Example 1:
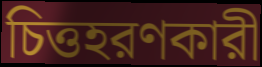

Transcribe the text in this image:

চিত্তহরণকারী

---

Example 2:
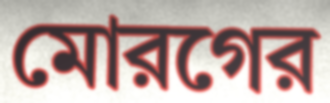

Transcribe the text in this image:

মোরগের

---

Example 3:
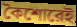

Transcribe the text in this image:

কৈশোরেই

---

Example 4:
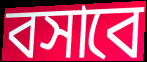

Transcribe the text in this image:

বসাবে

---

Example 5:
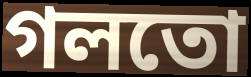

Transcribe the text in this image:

গলতো